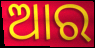
ଆର